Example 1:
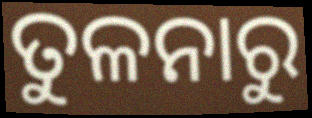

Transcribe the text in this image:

ତୁଳନାରୁ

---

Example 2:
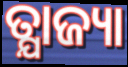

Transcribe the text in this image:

ତ୍ଯାଜ୍ୟା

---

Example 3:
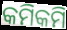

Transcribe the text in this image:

କମିକମି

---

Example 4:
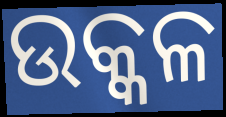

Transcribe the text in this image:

ଉକ୍କଳ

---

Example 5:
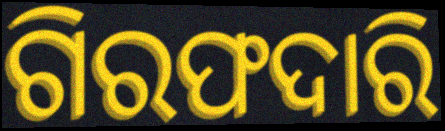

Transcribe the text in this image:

ଗିରଫଦାରି